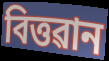
বিত্তৱান